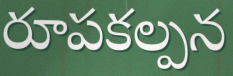
రూపకల్పన